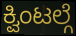
ಕ್ವಿಂಟಲ್ಗೆ